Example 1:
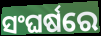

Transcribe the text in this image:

ସଂଘର୍ଷରେ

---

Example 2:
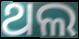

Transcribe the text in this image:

ଥଲ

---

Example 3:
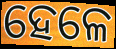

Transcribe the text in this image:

ହେଳେ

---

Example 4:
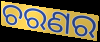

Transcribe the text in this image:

ଚରଣର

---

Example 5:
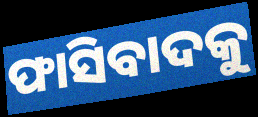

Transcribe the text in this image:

ଫାସିବାଦକୁ